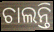
ଚାଲନ୍ତି